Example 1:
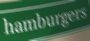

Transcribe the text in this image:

hamburgers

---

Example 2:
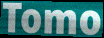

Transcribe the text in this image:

Tomo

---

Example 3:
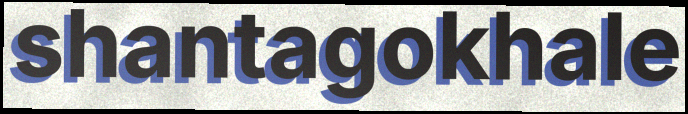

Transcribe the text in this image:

shantagokhale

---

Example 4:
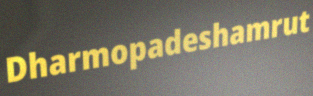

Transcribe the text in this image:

Dharmopadeshamrut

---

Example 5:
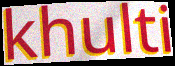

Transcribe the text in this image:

khulti